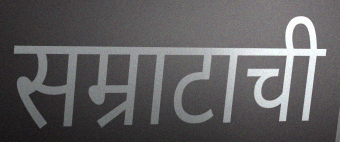
सम्राटाची